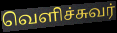
வெளிச்சுவர்